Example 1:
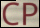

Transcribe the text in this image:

CP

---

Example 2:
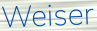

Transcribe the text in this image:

Weiser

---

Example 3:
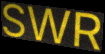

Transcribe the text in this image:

SWR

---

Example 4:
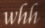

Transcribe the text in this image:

whh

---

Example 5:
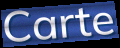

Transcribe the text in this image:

Carte